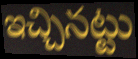
ఇచ్చినట్టు